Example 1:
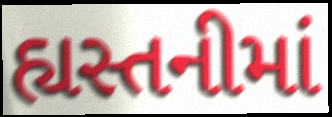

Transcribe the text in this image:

હ્યસ્તનીમાં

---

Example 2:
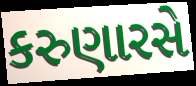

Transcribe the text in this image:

કરુણારસે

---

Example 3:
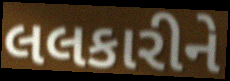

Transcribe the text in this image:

લલકારીને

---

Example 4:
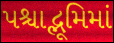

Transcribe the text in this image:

પશ્ચાદ્ભૂમિમાં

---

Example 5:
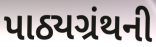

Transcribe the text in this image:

પાઠ્યગ્રંથની